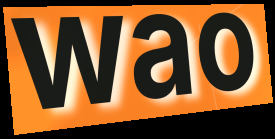
wao